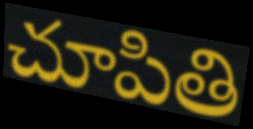
చూపితి